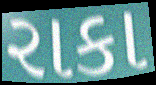
રાકા